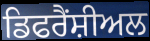
ਡਿਫਰੈਂਸ਼ੀਅਲ